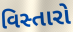
વિસ્તારો